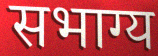
सभाग्य